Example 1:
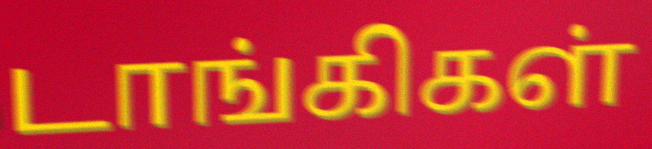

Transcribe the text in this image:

டாங்கிகள்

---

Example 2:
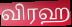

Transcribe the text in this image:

விரஹ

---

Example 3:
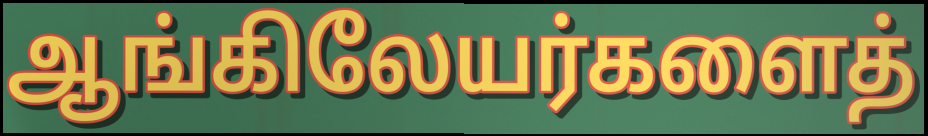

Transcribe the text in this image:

ஆங்கிலேயர்களைத்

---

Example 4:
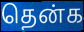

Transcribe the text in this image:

தென்க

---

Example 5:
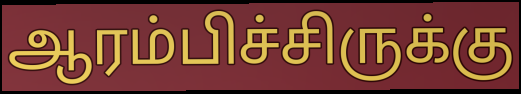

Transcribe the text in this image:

ஆரம்பிச்சிருக்கு